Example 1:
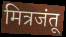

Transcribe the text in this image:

मित्रजंतू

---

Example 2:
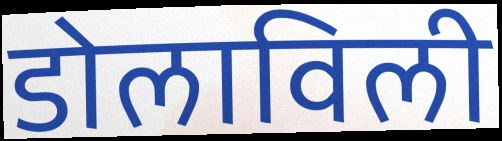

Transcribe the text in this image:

डोलाविली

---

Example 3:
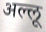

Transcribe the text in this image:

अल्लू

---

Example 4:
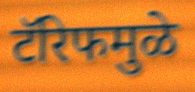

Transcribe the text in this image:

टॅरिफमुळे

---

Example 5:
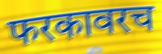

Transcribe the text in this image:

फरकावरच